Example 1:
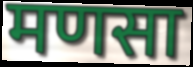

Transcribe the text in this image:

मणसा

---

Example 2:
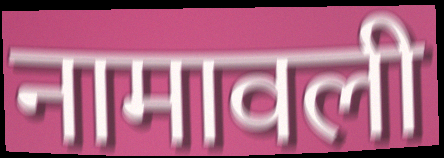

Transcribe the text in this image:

नामावली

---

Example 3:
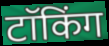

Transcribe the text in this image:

टॉकिंग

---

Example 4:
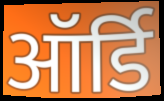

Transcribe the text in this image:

ऑर्डि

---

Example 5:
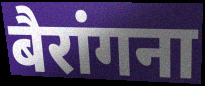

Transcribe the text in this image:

बैरांगना